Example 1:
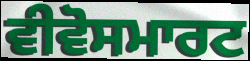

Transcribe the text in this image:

ਵੀਵੋਸਮਾਰਟ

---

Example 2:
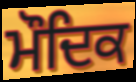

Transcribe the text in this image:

ਮੌਦਿਕ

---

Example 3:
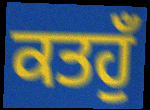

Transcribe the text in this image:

ਕਤਹੁਁ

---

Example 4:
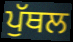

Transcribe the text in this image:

ਪੁੱਥਲ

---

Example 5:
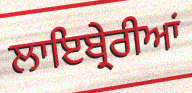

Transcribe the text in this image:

ਲਾਇਬ੍ਰੇਰੀਆਂ